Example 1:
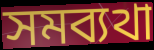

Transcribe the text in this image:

সমব্যথা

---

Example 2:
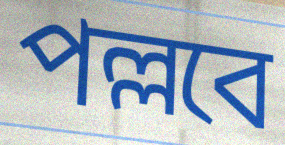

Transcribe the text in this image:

পল্লবে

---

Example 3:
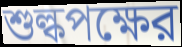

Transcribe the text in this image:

শুল্কপক্ষের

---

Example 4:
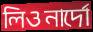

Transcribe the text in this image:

লিওনার্দো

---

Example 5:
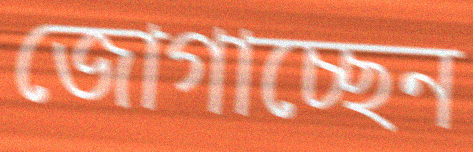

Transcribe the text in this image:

জোগাচ্ছেন